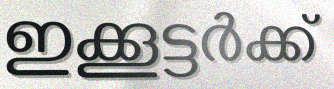
ഇക്കൂട്ടർക്ക്